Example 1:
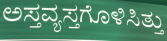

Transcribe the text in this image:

ಅಸ್ತವ್ಯಸ್ತಗೊಳಿಸಿತ್ತು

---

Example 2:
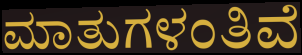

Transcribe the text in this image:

ಮಾತುಗಳಂತಿವೆ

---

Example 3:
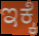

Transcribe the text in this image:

ಇಕ್ಕೆ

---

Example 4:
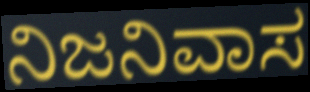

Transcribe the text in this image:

ನಿಜನಿವಾಸ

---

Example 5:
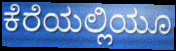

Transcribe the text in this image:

ಕೆರೆಯಲ್ಲಿಯೂ